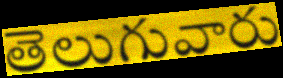
తెలుగువారు